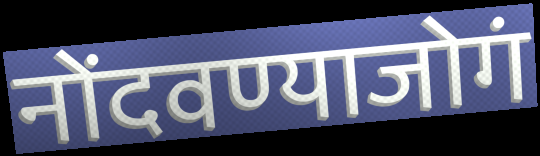
नोंदवण्याजोगं